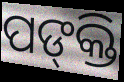
ପଙ୍‍କ୍ତି